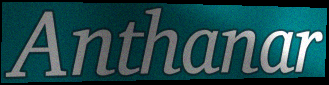
Anthanar